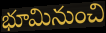
భూమినుంచి